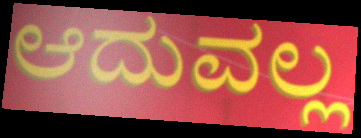
ಆದುವಲ್ಲ